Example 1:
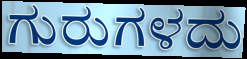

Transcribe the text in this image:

ಗುರುಗಳದು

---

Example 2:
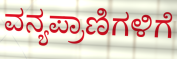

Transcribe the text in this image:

ವನ್ಯಪ್ರಾಣಿಗಳಿಗೆ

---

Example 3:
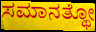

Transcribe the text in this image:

ಸಮಾನತ್ಥೋ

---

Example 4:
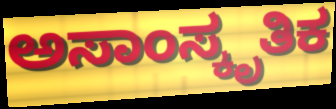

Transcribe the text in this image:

ಅಸಾಂಸ್ಕೃತಿಕ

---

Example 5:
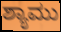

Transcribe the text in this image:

ಶ್ಯಾಮು